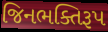
જિનભક્તિરૂપ